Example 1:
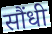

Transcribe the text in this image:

सौंधी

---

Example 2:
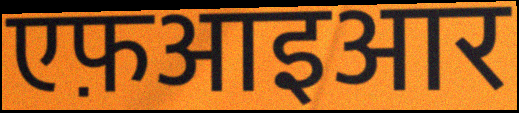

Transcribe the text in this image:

एफ़आइआर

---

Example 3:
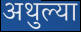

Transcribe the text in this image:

अथुल्या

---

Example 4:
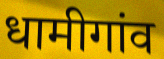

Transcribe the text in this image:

धामीगांव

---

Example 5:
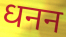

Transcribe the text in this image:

धनन